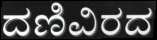
ದಣಿವಿರದ